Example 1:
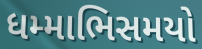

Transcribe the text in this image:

ધમ્માભિસમયો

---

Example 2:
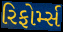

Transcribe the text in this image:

રિફોર્મ્સ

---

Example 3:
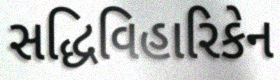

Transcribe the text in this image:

સદ્ધિવિહારિકેન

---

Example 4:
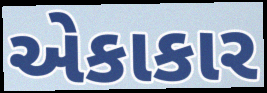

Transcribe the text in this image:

એકાકાર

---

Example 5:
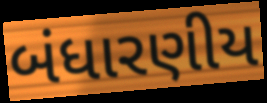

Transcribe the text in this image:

બંધારણીય